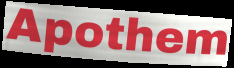
Apothem